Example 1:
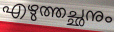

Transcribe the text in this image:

എഴുത്തച്ഛനും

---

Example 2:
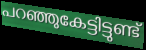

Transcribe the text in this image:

പറഞ്ഞുകേട്ടിട്ടുണ്ട്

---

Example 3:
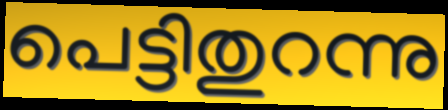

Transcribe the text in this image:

പെട്ടിതുറന്നു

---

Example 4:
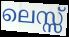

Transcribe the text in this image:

ലെസ്സ്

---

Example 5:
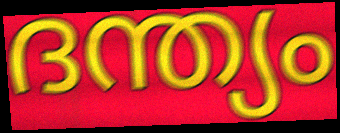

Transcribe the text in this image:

ദന്ത്യം